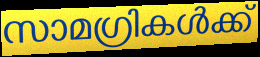
സാമഗ്രികൾക്ക്